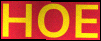
HOE